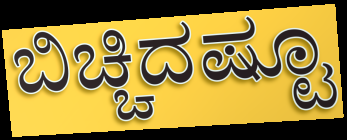
ಬಿಚ್ಚಿದಷ್ಟೂ